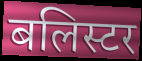
बलिस्टर